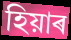
হিয়াৰ